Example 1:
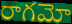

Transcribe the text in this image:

రాగమో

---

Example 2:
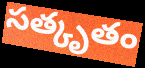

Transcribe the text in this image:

సత్కృతం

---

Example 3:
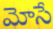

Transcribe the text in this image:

మోసే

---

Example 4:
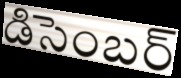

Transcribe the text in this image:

డిసెంబర్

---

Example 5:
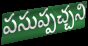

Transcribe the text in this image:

పసుప్పచ్చని